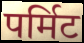
पर्मिट